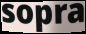
sopra